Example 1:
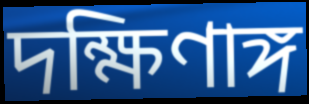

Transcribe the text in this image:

দক্ষিণাঙ্গ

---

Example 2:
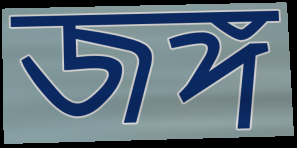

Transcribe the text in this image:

জঙ্গ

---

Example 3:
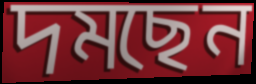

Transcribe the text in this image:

দমছেন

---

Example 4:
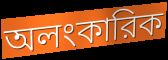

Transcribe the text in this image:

অলংকারিক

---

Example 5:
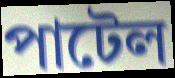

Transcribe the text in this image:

পাটেল